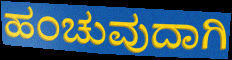
ಹಂಚುವುದಾಗಿ